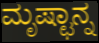
ಮೃಷ್ಟಾನ್ನ